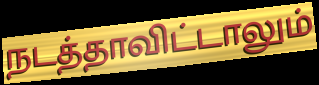
நடத்தாவிட்டாலும்